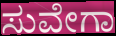
ಸುವೇಗಾ